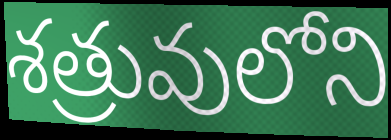
శత్రువులోని